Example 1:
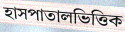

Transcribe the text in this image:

হাসপাতালভিত্তিক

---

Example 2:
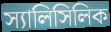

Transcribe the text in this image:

স্যালিসিলিক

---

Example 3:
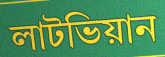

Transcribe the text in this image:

লাটভিয়ান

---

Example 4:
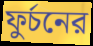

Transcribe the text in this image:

ফুর্চনের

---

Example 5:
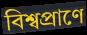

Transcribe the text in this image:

বিশ্বপ্রাণে